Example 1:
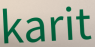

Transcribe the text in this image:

karit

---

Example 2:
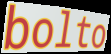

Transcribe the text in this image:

bolto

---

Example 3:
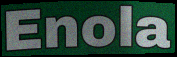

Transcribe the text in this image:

Enola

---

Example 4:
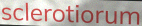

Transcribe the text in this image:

sclerotiorum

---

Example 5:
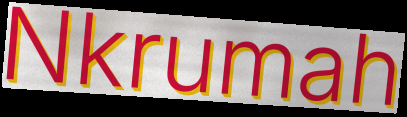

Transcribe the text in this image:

Nkrumah